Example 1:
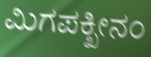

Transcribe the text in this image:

ಮಿಗಪಕ್ಖೀನಂ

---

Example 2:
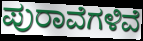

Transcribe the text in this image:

ಪುರಾವೆಗಳಿವೆ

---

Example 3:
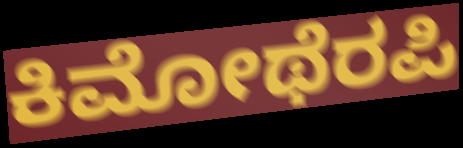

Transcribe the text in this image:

ಕಿಮೋಥೆರಪಿ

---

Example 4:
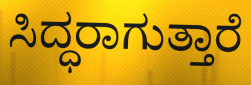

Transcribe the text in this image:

ಸಿದ್ಧರಾಗುತ್ತಾರೆ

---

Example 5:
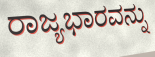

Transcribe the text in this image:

ರಾಜ್ಯಭಾರವನ್ನು